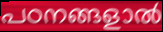
പഠനങ്ങളാൽ